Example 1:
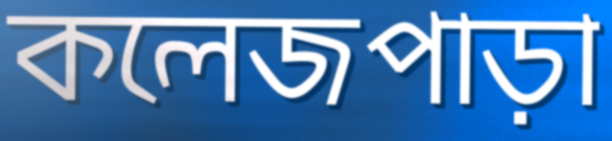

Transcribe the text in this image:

কলেজপাড়া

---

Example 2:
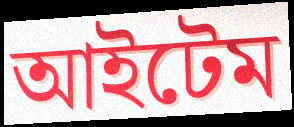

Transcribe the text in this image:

আইটেম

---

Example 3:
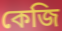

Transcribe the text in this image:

কেজি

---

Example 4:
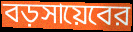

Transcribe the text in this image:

বড়সায়েবের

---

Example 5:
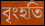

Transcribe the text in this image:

বৃংহতি